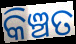
କିଞ୍ଚତ